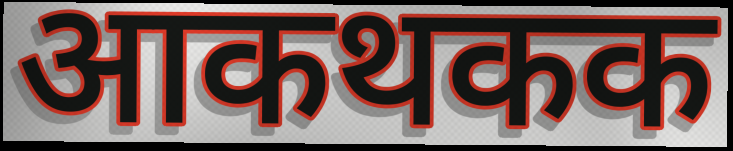
आकथकक